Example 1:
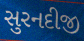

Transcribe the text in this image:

સુરનદીજી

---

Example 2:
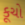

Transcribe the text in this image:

કૂચો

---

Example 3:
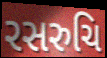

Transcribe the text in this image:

રસરુચિ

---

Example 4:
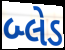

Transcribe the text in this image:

બ્લેડ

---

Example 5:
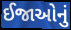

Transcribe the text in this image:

ઈજાઓનું